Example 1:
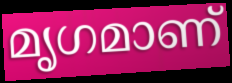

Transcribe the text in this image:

മൃഗമാണ്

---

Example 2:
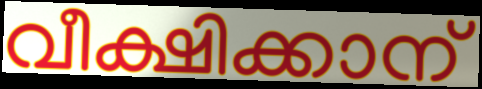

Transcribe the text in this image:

വീക്ഷിക്കാന്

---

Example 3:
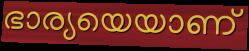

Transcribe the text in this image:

ഭാര്യയെയാണ്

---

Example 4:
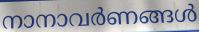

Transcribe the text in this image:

നാനാവർണങ്ങൾ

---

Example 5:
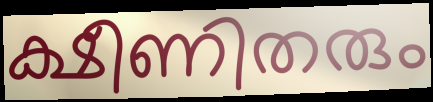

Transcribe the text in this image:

ക്ഷീണിതരും